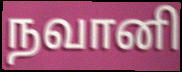
நவானி